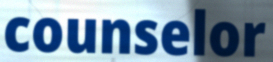
counselor